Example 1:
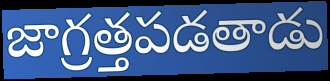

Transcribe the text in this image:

జాగ్రత్తపడతాడు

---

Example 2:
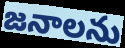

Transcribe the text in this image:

జనాలను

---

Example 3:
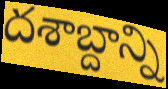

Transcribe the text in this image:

దశాబ్దాన్ని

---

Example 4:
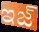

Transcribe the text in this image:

ఇజ్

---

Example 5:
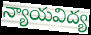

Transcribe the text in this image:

న్యాయవిద్య